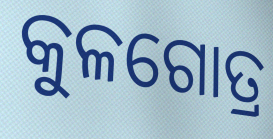
କୁଳଗୋତ୍ର